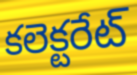
కలెక్టరేట్